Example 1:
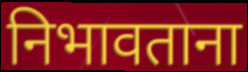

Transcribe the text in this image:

निभावताना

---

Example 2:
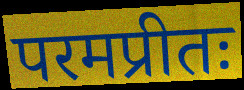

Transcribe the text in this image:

परमप्रीतः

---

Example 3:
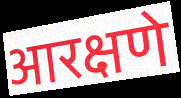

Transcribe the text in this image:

आरक्षणे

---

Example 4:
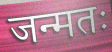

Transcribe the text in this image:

जन्मतः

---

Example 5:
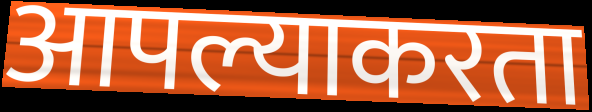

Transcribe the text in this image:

आपल्याकरता